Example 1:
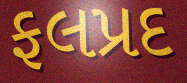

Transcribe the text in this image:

ફલપ્રદ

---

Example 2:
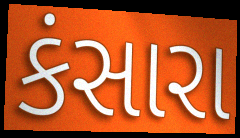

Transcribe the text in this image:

કંસારા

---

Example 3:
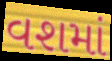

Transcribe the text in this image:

વશમાં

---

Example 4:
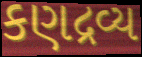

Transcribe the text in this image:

કણદ્રવ્ય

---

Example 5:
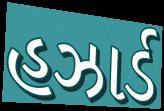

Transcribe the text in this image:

હઝાર્ડ